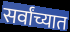
सर्वांच्यात